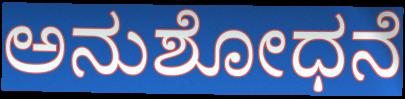
ಅನುಶೋಧನೆ